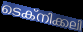
ടെക്‌നിക്കലി